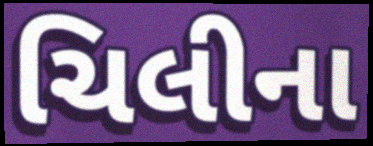
ચિલીના